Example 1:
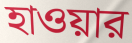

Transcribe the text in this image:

হাওয়ার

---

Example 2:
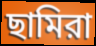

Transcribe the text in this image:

ছামিরা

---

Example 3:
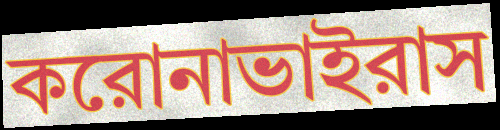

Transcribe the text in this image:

করোনাভাইরাস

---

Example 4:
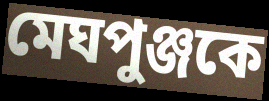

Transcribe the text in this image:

মেঘপুঞ্জকে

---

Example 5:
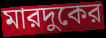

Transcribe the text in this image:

মারদুকের